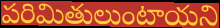
పరిమితులుంటాయని